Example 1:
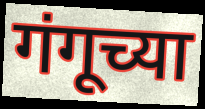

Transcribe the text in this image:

गंगूच्या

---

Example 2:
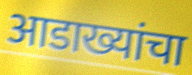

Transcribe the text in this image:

आडाख्यांचा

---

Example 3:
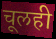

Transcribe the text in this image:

चूलही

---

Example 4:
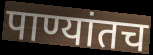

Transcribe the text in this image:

पाण्यांतच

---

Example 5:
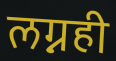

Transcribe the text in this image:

लग्नही